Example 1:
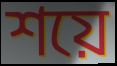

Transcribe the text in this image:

শয়ে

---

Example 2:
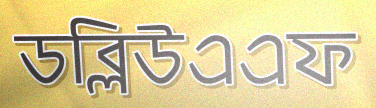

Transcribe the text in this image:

ডব্লিউএএফ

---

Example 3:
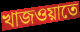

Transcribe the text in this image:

খাজওয়াতে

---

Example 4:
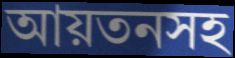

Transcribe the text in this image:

আয়তনসহ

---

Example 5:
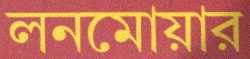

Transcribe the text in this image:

লনমোয়ার